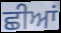
ਛੀਆਂ